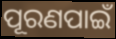
ପୂରଣପାଇଁ